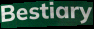
Bestiary